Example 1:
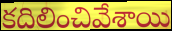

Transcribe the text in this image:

కదిలించివేశాయి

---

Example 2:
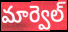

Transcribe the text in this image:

మార్వెల్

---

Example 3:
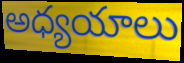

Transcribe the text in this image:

అధ్యయాలు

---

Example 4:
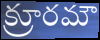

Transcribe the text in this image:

క్రూరమౌ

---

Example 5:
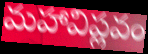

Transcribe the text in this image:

మహావిప్లవం